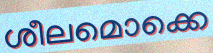
ശീലമൊക്കെ